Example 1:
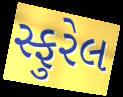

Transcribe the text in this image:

સ્ફુરેલ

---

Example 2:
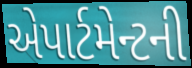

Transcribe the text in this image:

એપાર્ટમેન્ટની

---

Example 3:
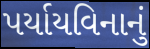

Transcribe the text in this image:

પર્યાયવિનાનું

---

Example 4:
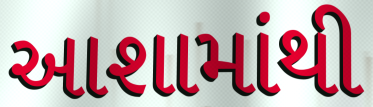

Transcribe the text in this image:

આશામાંથી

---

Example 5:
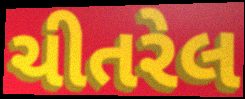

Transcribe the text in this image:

ચીતરેલ